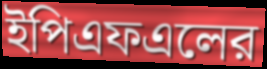
ইপিএফএলের